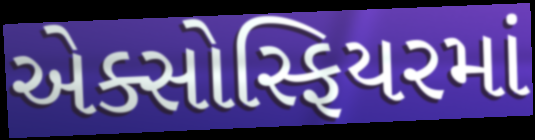
એક્સોસ્ફિયરમાં